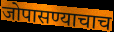
जोपासण्याचाच